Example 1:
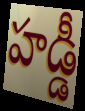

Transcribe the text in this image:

హడ్డీ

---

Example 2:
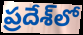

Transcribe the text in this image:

ప్రదేశ్‌లో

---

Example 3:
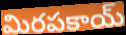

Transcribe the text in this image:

మిరపకాయ్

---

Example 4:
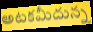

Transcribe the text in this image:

అటకమీదున్న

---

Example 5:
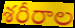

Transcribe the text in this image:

శరీరాల